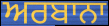
ਅਰਬਾਨਾ